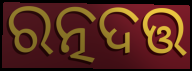
ରତ୍ନଦତ୍ତ